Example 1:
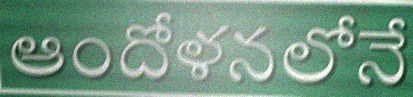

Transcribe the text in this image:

ఆందోళనలోనే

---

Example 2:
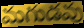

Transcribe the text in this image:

మగుడవు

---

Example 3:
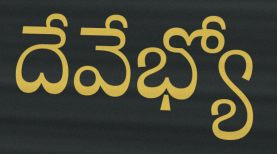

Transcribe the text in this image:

దేవేభ్యో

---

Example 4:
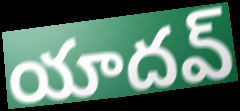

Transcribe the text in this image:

యాదవ్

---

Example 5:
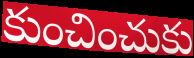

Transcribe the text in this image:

కుంచించుకు